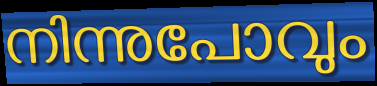
നിന്നുപോവും